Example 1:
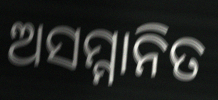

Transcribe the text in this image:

ଅସମ୍ମାନିତ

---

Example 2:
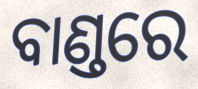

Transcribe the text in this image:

ବାଣ୍ଡରେ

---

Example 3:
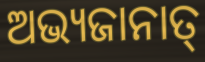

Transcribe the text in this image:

ଅଭ୍ୟଜାନାତ୍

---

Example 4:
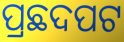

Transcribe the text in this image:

ପ୍ରଛଦପଟ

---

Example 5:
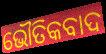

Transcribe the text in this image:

ଭୌତିକବାଦ